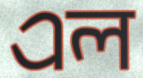
এল